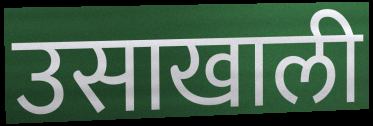
उसाखाली